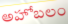
అహోబలం